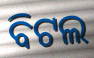
ବିଟଲ